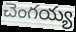
చెంగయ్య